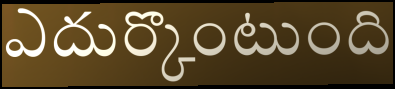
ఎదుర్కొంటుంది